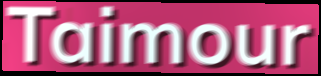
Taimour